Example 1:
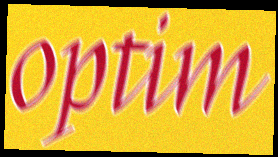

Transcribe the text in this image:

optim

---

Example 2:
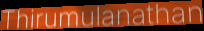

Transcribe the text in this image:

Thirumulanathan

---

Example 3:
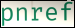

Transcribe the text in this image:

pnref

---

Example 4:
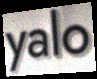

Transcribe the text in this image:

yalo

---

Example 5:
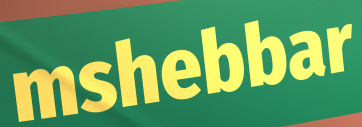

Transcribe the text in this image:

mshebbar